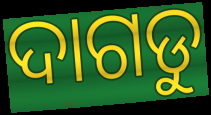
ଦାଗଡୁ